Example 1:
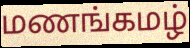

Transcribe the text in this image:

மணங்கமழ்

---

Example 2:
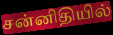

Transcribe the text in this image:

சன்னிதியில்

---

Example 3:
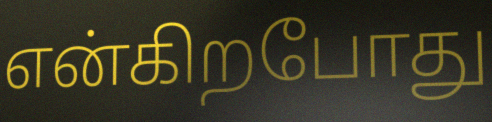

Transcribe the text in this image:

என்கிறபோது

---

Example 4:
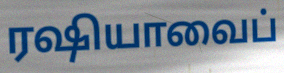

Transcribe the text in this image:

ரஷியாவைப்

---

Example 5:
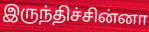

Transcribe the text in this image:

இருந்திச்சின்னா